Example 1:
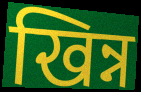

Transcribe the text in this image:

खिन्न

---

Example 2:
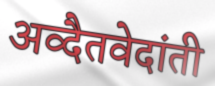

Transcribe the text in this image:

अव्दैतवेदांती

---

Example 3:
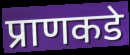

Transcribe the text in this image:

प्राणकडे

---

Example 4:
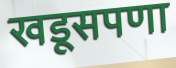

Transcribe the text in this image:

खडूसपणा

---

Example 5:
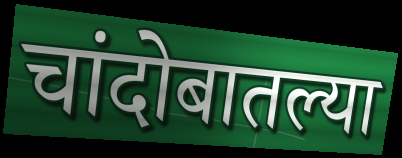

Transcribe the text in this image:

चांदोबातल्या